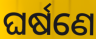
ଘର୍ଷଣେ